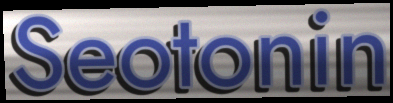
Seotonin